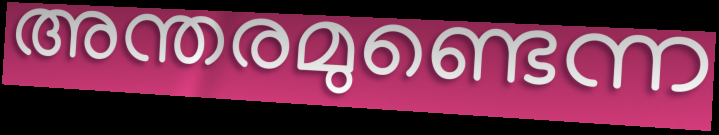
അന്തരമുണ്ടെന്ന